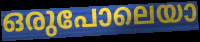
ഒരുപോലെയാ